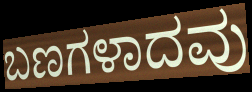
ಬಣಗಳಾದವು